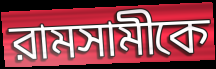
রামসামীকে